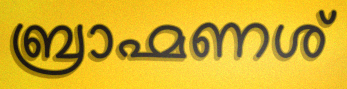
ബ്രാഹ്മണശ്